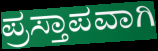
ಪ್ರಸ್ತಾಪವಾಗಿ